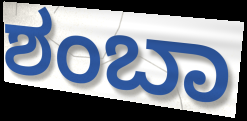
ಶಂಬಾ